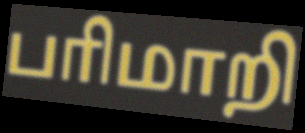
பரிமாறி